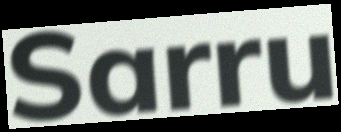
Sarru